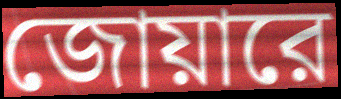
জোয়ারে